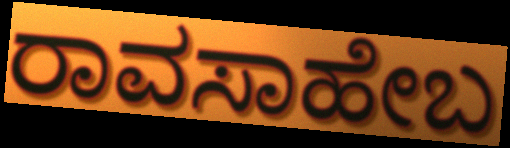
ರಾವಸಾಹೇಬ